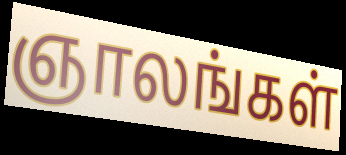
ஞாலங்கள்